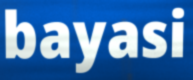
bayasi